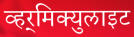
व्हर्मिक्युलाइट